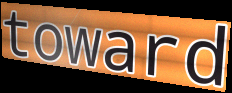
toward